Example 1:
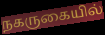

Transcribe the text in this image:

நகருகையில்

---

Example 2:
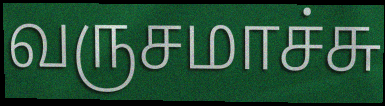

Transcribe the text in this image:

வருசமாச்சு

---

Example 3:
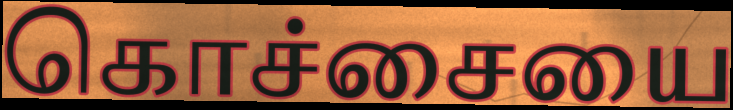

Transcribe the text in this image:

கொச்சையை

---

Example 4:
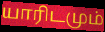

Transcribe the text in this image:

யாரிடமும்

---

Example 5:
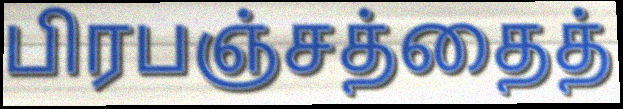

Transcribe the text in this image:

பிரபஞ்சத்தைத்